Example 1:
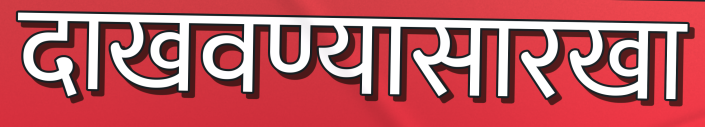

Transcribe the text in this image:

दाखवण्यासारखा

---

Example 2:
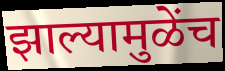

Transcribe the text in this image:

झाल्यामुळेंच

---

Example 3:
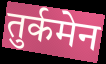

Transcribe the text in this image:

तुर्कमेन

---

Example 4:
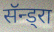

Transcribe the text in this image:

सॅन्ड्रा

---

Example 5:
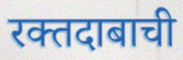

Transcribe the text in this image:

रक्तदाबाची